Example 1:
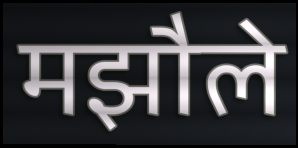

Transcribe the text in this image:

मझौले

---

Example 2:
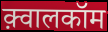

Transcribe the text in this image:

क़्वालकॉम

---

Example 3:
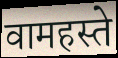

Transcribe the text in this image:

वामहस्ते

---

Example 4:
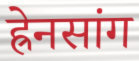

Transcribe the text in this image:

ह्रेनसांग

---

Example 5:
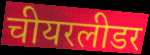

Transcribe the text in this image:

चीयरलीडर